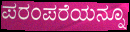
ಪರಂಪರೆಯನ್ನೂ